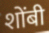
शोंबी